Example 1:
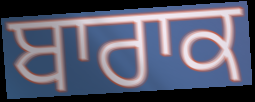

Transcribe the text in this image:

ਬਾਰਾਕ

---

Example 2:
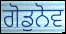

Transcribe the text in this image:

ਗੋਡੁਨੋਵ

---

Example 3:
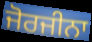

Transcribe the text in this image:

ਜੋਰਜੀਨਾ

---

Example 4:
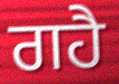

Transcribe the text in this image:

ਗਹੈ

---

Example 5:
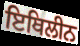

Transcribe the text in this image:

ਇਥਿਲੀਨ